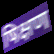
षिक्षण